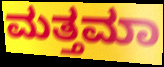
ಮತ್ತಮಾ